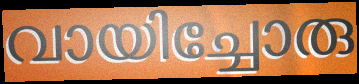
വായിച്ചോരു